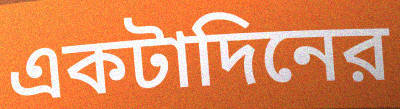
একটাদিনের